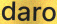
daro